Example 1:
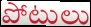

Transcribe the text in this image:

పోటులు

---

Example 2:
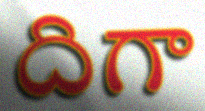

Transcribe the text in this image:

దిగా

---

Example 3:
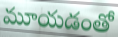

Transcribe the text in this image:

మూయడంతో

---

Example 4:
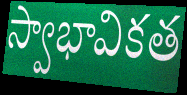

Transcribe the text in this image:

స్వాభావికత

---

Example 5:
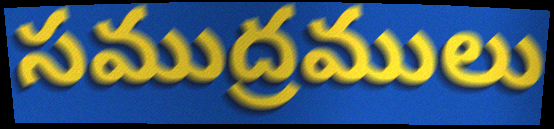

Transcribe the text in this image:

సముద్రములు